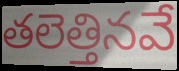
తలెత్తినవే